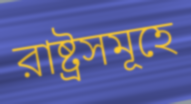
রাষ্ট্রসমূহে